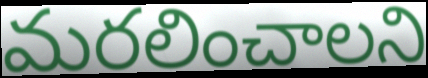
మరలించాలని